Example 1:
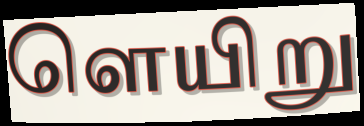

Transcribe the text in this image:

ளெயிறு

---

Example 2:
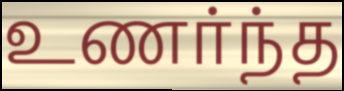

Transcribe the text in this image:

உணர்ந்த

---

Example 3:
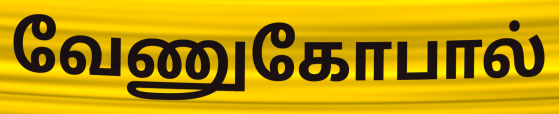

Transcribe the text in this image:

வேணுகோபால்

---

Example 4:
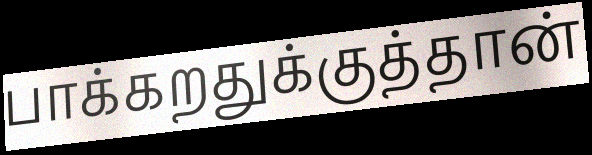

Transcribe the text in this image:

பாக்கறதுக்குத்தான்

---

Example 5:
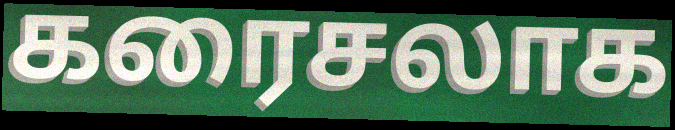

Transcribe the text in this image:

கரைசலாக